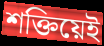
শক্তিয়েই